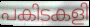
പകിടകളി